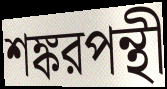
শঙ্করপন্থী